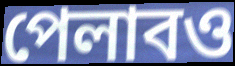
পেলাবও